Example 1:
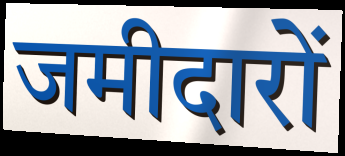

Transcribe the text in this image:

जमीदारों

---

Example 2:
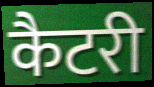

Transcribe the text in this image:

कैटरी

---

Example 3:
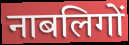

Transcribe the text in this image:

नाबलिगों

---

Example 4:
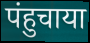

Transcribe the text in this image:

पंहुचाया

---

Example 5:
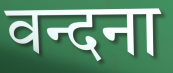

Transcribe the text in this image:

वन्दना